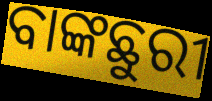
ବାଙ୍କଛୁରୀ